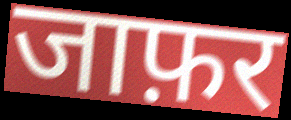
जाफ़र